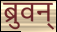
ब्रुवन्